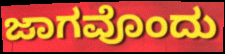
ಜಾಗವೊಂದು